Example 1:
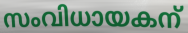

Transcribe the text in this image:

സംവിധായകന്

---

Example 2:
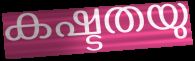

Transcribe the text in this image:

കഷ്ടതയു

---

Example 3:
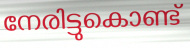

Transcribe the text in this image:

നേരിട്ടുകൊണ്ട്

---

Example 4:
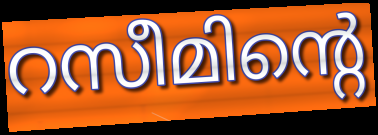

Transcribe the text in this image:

റസീമിന്റെ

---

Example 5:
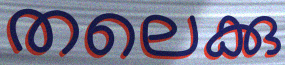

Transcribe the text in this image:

തലെക്കു